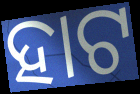
ହାଟ